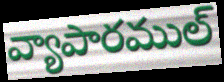
వ్యాపారముల్